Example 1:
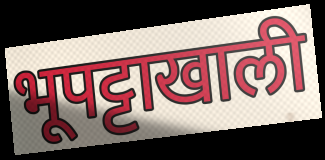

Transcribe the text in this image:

भूपट्टाखाली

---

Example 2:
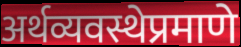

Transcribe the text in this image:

अर्थव्यवस्थेप्रमाणे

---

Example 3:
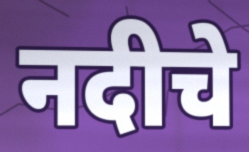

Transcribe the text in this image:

नदीचे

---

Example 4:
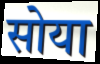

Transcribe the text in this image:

सोया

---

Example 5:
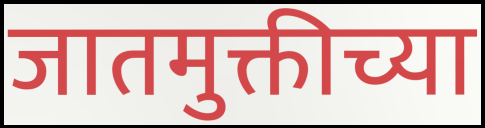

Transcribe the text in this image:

जातमुक्तीच्या